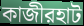
কাজীরহাট